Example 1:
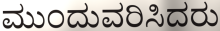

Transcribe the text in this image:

ಮುಂದುವರಿಸಿದರು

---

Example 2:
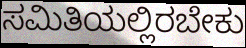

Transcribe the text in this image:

ಸಮಿತಿಯಲ್ಲಿರಬೇಕು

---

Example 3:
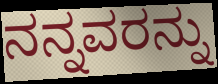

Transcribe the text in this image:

ನನ್ನವರನ್ನು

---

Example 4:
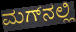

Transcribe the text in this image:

ಮಗ್‌ನಲ್ಲಿ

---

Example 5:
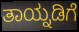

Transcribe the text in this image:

ತಾಯ್ನಡಿಗೆ